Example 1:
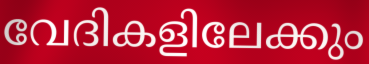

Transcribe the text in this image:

വേദികളിലേക്കും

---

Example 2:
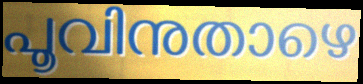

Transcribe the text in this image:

പൂവിനുതാഴെ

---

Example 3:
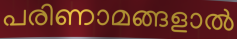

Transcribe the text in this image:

പരിണാമങ്ങളാൽ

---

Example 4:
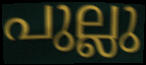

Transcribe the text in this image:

പുല്ലു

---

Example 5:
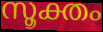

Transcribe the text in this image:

സൂക്തം